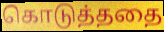
கொடுத்ததை